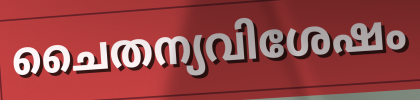
ചൈതന്യവിശേഷം